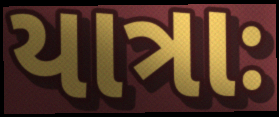
યાત્રાઃ